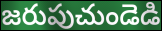
జరుపుచుండెడి